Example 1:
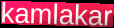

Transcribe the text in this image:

kamlakar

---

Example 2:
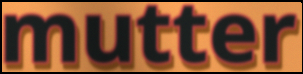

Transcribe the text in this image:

mutter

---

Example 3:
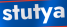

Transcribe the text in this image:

stutya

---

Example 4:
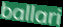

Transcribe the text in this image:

ballari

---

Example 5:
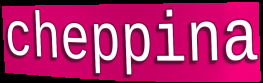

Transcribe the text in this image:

cheppina